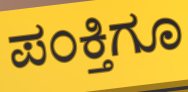
ಪಂಕ್ತಿಗೂ